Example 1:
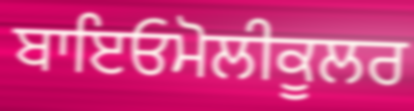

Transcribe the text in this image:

ਬਾਇਓਮੋਲੀਕੂਲਰ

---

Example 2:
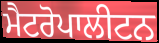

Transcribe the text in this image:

ਮੈਟਰੋਪਾਲੀਟਨ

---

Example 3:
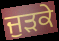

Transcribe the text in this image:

ਜੁੜਕੇ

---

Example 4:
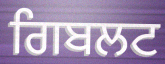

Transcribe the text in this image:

ਗਿਬਲਟ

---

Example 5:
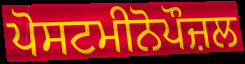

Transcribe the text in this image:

ਪੋਸਟਮੀਨੋਪੌਜ਼ਲ